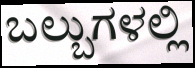
ಬಲ್ಬುಗಳಲ್ಲಿ